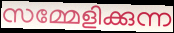
സമ്മേളിക്കുന്ന